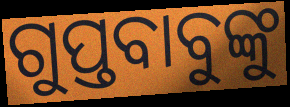
ଗୁପ୍ତବାବୁଙ୍କୁ